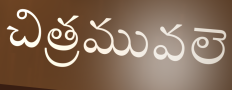
చిత్రమువలె